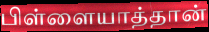
பிள்ளையாத்தான்